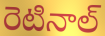
రెటినాల్